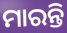
ମାରନ୍ତି